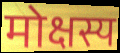
मोक्षस्य